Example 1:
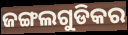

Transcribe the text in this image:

ଜଙ୍ଗଲଗୁଡିକର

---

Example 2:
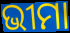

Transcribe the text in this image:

ଭୀମା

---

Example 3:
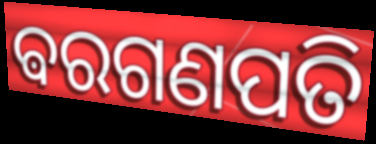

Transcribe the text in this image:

ଵରଗଣପତି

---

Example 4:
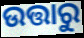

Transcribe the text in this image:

ଉତ୍ତାରୁ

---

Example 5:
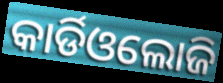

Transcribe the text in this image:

କାର୍ଡିଓଲୋଜି